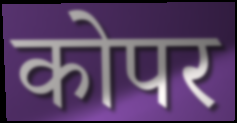
कोपर